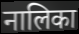
नालिका